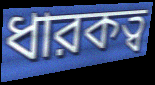
ধারকত্ব